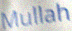
Mullah